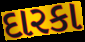
દારકા